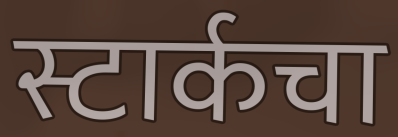
स्टार्कचा